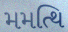
મમત્થિ